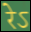
रेऽ